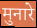
मुनारे